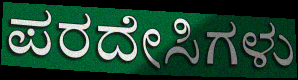
ಪರದೇಸಿಗಳು